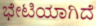
ಭೇಟಿಯಾಗಿದೆ